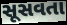
સૂસવતા